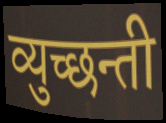
व्युच्छन्ती